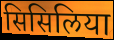
सिसिलिया